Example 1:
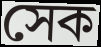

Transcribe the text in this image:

সেক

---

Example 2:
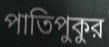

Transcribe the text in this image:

পাতিপুকুর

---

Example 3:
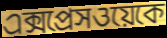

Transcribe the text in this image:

এক্সপ্রেসওয়েকে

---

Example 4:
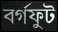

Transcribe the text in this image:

বর্গফুট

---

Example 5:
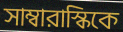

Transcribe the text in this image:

সাম্বারাস্কিকে